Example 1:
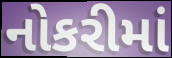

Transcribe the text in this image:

નોકરીમાં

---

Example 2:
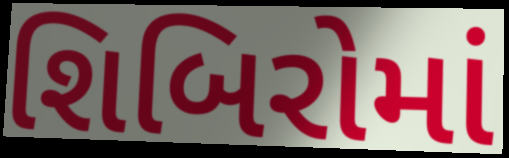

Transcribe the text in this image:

શિબિરોમાં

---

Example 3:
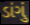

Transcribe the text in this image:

ડાંગું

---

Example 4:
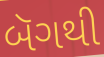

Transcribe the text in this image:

બૅગથી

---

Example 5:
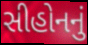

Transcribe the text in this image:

સીહોનનું